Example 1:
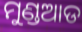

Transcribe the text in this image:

ମୁଣ୍ଡଆଡ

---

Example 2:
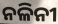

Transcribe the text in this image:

ନଳିନୀ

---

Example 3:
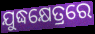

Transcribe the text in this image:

ଯୁଦ୍ଧକ୍ଷେତ୍ରରେ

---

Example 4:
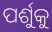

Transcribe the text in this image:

ପର୍ଶୁକୁ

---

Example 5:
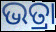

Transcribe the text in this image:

ଭତ୍ରା